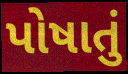
પોષાતું